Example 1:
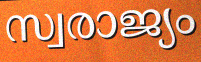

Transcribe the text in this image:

സ്വരാജ്യം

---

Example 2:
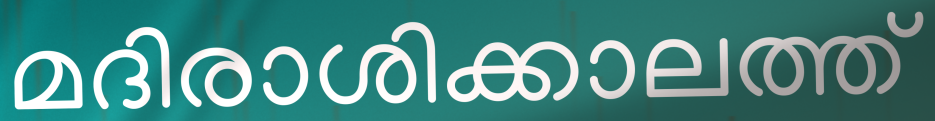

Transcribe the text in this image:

മദിരാശിക്കാലത്ത്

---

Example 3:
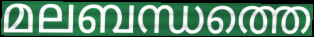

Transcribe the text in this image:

മലബന്ധത്തെ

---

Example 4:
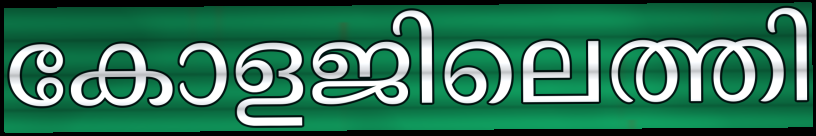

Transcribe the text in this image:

കോളജിലെത്തി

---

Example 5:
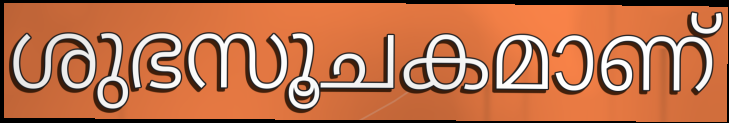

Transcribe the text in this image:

ശുഭസൂചകമാണ്